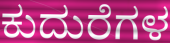
ಕುದುರೆಗಳ